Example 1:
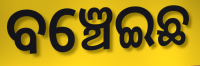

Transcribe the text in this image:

ବଞ୍ଚେଇଛ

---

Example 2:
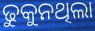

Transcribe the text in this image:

ଢୁକୁନଥିଲା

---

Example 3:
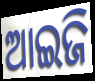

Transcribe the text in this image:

ଆଇଜି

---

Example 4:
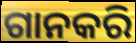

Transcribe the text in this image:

ଗାନକରି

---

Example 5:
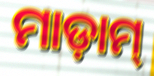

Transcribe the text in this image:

ମାଡ଼ାମ୍